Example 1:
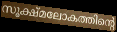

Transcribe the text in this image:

സൂക്ഷ്മലോകത്തിന്റെ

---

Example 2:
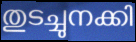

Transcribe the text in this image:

തുടച്ചുനക്കി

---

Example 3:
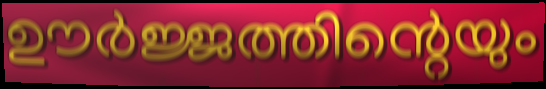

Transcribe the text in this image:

ഊർജ്ജത്തിന്റെയും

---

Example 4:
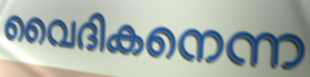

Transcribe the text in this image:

വൈദികനെന്ന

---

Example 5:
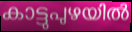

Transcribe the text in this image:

കാട്ടുപുഴയിൽ